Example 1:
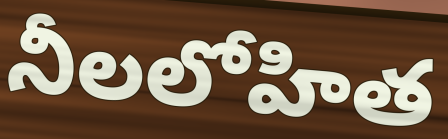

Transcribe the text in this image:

నీలలోహిత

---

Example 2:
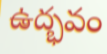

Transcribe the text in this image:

ఉద్భవం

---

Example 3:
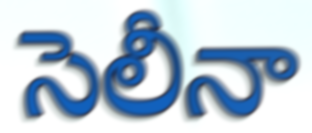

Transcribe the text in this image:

సెలీనా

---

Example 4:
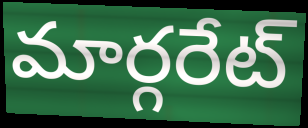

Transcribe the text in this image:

మార్గరేట్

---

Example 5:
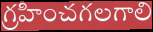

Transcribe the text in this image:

గ్రహించగలగాలి